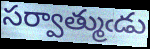
సర్వాత్ముఁడు